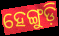
ହେଙ୍ଗୁଡ଼ି